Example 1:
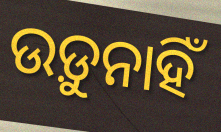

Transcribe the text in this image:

ଉଡ଼ୁନାହିଁ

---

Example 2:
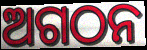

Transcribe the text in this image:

ଅଗଠନ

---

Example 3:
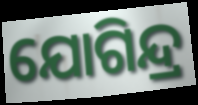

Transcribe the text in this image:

ଯୋଗିନ୍ଦ୍ର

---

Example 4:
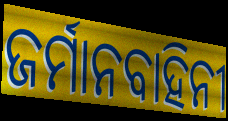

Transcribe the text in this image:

ଜର୍ମାନବାହିନୀ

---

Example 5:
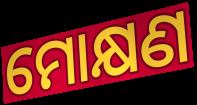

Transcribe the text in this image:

ମୋକ୍ଷଣ